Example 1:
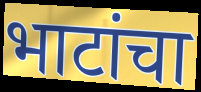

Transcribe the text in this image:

भाटांचा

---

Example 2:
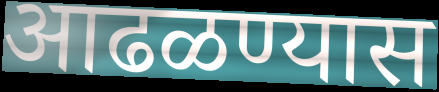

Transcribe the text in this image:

आढळण्यास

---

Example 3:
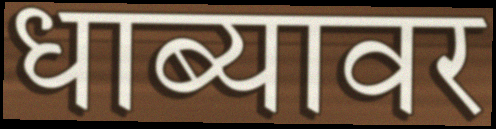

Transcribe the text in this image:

धाब्यावर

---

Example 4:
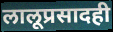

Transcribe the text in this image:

लालूप्रसादही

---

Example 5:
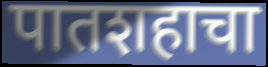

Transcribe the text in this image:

पातशहाचा